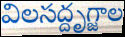
విలసద్దృగ్జాల